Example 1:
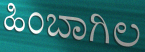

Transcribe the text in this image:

ಹಿಂಬಾಗಿಲ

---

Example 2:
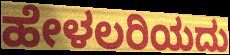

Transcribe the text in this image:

ಹೇಳಲರಿಯದು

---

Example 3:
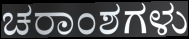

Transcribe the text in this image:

ಚರಾಂಶಗಳು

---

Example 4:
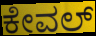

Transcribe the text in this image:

ಕೇವಲ್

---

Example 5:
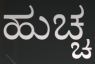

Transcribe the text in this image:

ಹುಚ್ಚ